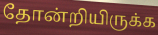
தோன்றியிருக்க